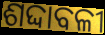
ଶଦ୍ଦାବଳୀ